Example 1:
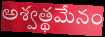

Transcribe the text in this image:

అశ్వత్థమేనం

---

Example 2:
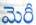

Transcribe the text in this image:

మెరీ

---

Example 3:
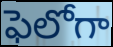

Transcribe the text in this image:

ఫెలోగా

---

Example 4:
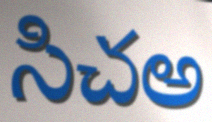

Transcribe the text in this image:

సిచఅ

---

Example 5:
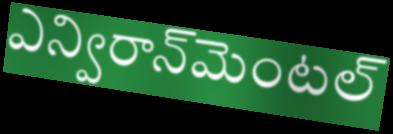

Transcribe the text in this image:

ఎన్విరాన్‌మెంటల్